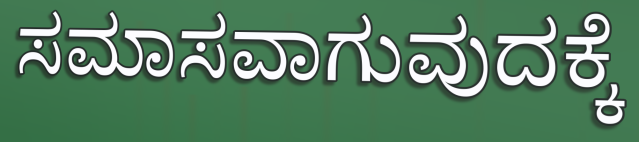
ಸಮಾಸವಾಗುವುದಕ್ಕೆ